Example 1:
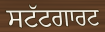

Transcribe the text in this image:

ਸਟੱਟਗਾਰਟ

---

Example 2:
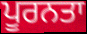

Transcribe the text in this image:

ਪੂਰਨਤਾ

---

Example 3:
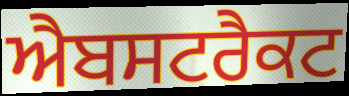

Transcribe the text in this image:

ਐਬਸਟਰੈਕਟ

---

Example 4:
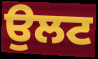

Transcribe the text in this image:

ਉਲਟ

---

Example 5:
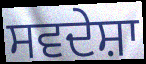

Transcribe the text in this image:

ਸਵਦੇਸ਼ਾ